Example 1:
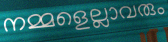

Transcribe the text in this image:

നമ്മളെല്ലാവരും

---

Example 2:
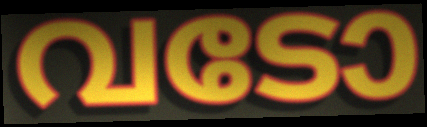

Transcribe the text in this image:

വടോ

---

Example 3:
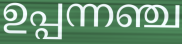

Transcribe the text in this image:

ഉപ്പന്നഞ്ച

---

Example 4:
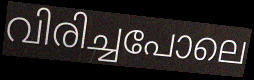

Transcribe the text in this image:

വിരിച്ചപോലെ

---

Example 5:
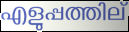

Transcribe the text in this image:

എളുപ്പത്തില്